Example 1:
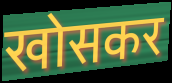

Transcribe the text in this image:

खोसकर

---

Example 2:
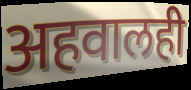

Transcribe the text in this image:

अहवालही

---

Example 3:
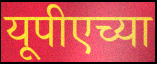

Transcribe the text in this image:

यूपीएच्या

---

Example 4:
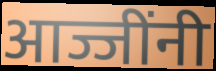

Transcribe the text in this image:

आज्जींनी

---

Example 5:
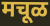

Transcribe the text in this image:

मचूळ